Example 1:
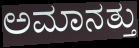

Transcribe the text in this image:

ಅಮಾನತ್ತು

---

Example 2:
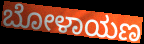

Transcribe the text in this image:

ಬೋಳಾಯಣ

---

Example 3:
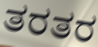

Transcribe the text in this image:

ತರತರ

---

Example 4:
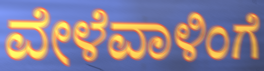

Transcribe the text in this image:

ವೇಳೆವಾಳಿಂಗೆ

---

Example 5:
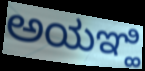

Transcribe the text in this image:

ಅಯಞ್ಹಿ